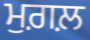
ਮੁਗ਼ਲ਼